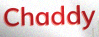
Chaddy